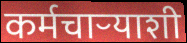
कर्मचाऱ्याशी